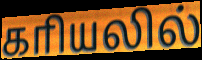
கரியலில்